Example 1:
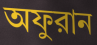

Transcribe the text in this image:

অফুরান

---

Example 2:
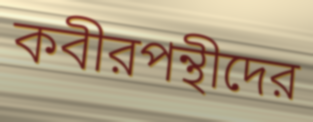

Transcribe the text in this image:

কবীরপন্থীদের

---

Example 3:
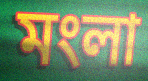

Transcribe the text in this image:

মংলা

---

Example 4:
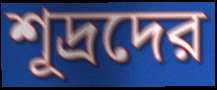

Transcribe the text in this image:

শূদ্রদের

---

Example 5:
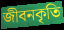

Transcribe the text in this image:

জীবনকৃতি